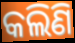
କଲିଣି